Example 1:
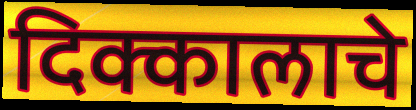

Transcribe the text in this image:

दिक्कालाचे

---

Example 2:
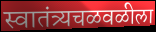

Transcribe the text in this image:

स्वातंत्र्यचळवळीला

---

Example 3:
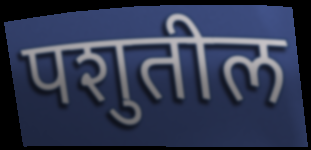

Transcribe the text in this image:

पशुतील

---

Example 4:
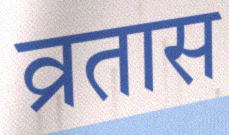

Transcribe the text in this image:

व्रतास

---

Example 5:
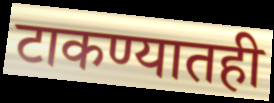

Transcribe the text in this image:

टाकण्यातही